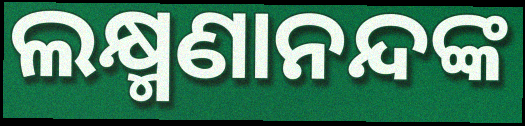
ଲକ୍ଷ୍ମଣାନନ୍ଦଙ୍କ